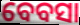
ବେବସା